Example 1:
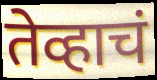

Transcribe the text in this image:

तेव्हाचं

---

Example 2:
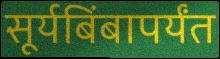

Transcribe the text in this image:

सूर्यबिंबापर्यंत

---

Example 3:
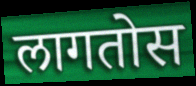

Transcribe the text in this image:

लागतोस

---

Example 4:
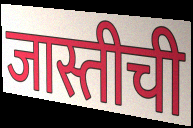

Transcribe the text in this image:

जास्तीची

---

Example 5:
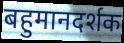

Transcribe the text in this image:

बहुमानदर्शक